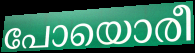
പോയൊരീ